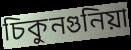
চিকুনগুনিয়া